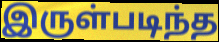
இருள்படிந்த